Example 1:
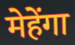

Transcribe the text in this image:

मेहेंगा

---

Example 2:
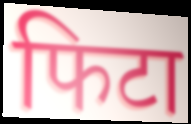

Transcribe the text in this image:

फिटा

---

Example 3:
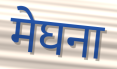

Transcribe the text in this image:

मेघना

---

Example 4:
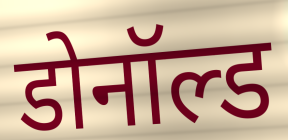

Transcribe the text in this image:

डोनॉल्ड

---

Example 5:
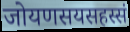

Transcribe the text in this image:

जोयणसयसहस्सं